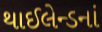
થાઈલેન્ડનાં